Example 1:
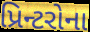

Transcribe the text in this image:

પ્રિન્ટરોના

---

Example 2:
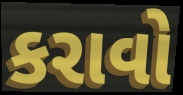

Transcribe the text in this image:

કરાવો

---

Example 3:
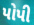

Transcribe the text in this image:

પોપી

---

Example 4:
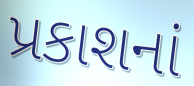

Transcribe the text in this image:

પ્રકાશનાં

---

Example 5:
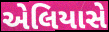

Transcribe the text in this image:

એલિયાસે